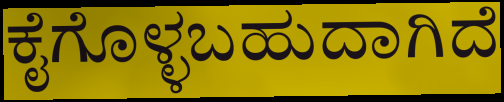
ಕೈಗೊಳ್ಳಬಹುದಾಗಿದೆ